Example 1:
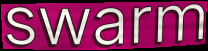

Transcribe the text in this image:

swarm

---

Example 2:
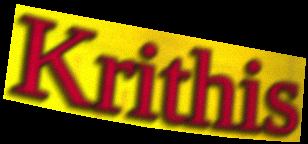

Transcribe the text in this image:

Krithis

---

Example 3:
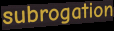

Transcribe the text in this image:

subrogation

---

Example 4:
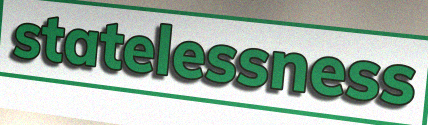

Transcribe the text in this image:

statelessness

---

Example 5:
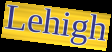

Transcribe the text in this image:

Lehigh